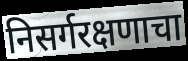
निसर्गरक्षणाचा